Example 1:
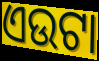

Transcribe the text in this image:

ଏଉଟା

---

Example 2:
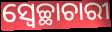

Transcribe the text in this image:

ସ୍ଵେଚ୍ଛାଚାରୀ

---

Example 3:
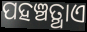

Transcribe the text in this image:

ପହଞ୍ଚତ୍ଥାଏ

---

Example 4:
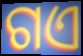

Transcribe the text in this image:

ଗଏ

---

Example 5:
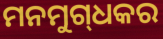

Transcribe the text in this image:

ମନମୁଗ୍‌ଧକର